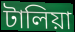
টালিয়া